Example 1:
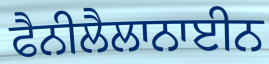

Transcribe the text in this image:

ਫੈਨੀਲੈਲਾਨਾਈਨ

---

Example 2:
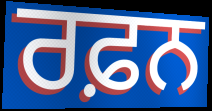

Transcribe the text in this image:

ਰਫ਼ਨ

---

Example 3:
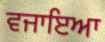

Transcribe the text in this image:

ਵਜਾਇਆ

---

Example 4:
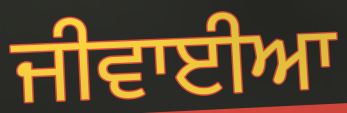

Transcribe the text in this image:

ਜੀਵਾਈਆ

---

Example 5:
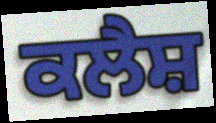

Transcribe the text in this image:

ਕਲੈਸ਼